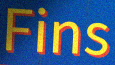
Fins